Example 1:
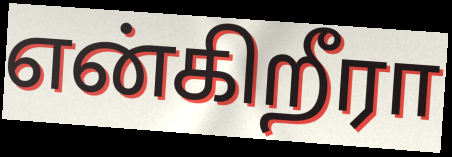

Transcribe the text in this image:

என்கிறீரா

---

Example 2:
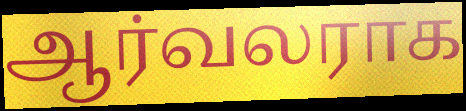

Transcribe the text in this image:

ஆர்வலராக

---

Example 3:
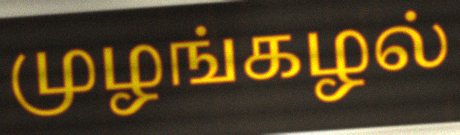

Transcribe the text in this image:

முழங்கழல்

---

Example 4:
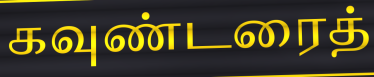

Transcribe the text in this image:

கவுண்டரைத்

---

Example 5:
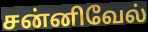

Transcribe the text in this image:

சன்னிவேல்